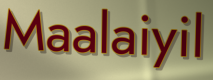
Maalaiyil